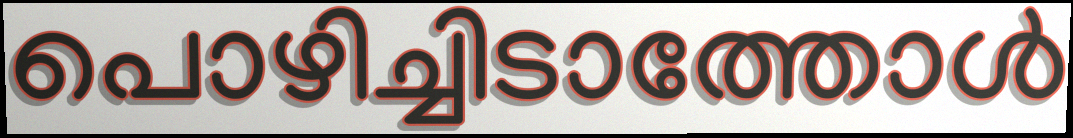
പൊഴിച്ചിടാത്തോൾ